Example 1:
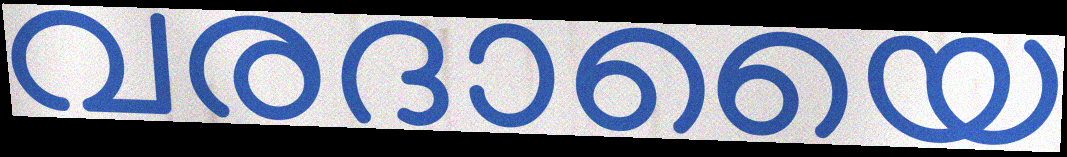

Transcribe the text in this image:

വരദായൈ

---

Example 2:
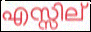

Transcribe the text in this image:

എസ്സില്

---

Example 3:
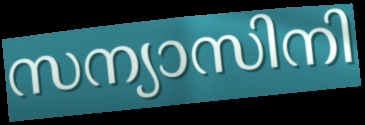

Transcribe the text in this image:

സന്യാസിനി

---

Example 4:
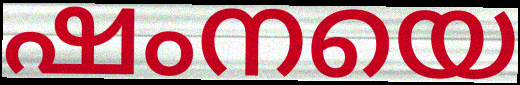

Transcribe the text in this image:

ഷംനയെ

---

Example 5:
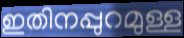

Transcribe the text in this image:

ഇതിനപ്പുറമുള്ള